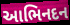
આભિનદન